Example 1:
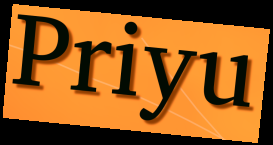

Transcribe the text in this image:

Priyu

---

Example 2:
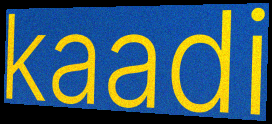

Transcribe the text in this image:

kaadi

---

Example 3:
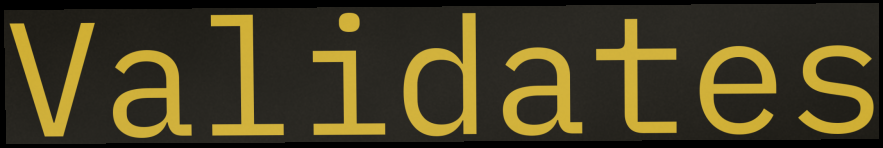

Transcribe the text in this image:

Validates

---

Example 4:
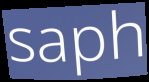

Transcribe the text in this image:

saph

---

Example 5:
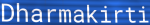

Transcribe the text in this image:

Dharmakirti